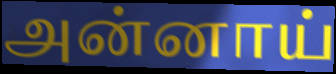
அன்னாய்